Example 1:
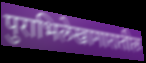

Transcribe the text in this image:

पुराभिलेखागारातील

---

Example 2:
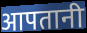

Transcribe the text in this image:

आपतानी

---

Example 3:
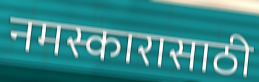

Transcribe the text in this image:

नमस्कारासाठी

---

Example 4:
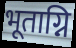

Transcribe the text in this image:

भूताग्नि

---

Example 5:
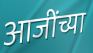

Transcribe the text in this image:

आजींच्या